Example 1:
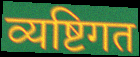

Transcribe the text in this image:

व्यष्टिगत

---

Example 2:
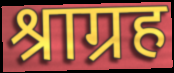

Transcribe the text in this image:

श्राग्रह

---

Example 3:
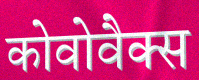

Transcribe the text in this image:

कोवोवैक्स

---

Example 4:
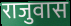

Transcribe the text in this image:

राजुवास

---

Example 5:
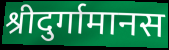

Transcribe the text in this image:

श्रीदुर्गामानस